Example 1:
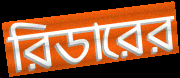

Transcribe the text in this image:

রিডারের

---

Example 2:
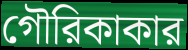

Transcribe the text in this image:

গৌরিকাকার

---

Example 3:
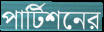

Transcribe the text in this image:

পার্টিশনের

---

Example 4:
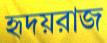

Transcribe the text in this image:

হৃদয়রাজ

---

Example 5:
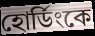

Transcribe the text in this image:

হোর্ডিংকে